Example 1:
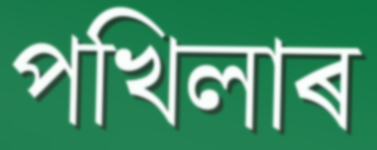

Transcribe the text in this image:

পখিলাৰ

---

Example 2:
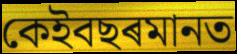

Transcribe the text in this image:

কেইবছৰমানত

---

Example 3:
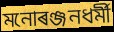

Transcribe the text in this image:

মনোৰঞ্জনধৰ্মী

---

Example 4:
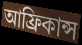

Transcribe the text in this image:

আফ্ৰিকান্স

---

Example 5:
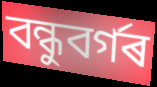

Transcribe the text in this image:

বন্ধুবৰ্গৰ